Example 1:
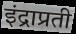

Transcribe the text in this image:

इंद्राप्रती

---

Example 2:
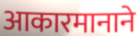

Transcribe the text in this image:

आकारमानाने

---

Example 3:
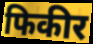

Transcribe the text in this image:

फिकीर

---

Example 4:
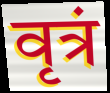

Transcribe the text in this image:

वृत्रं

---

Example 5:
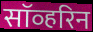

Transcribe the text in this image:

सॉव्हरिन